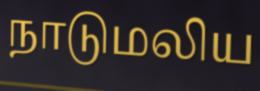
நாடுமலிய